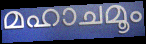
മഹാചമൂം